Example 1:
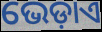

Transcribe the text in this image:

ଭେଡ଼ାଏ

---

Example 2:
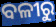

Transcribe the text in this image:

ବଳୀରୁ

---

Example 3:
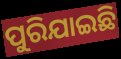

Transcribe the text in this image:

ପୁରିଯାଇଛି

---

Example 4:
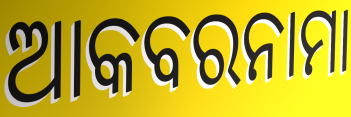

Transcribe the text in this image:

ଆକବରନାମା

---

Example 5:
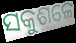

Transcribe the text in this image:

ସକୁଶଳେ